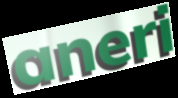
aneri